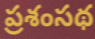
ప్రశంసథ